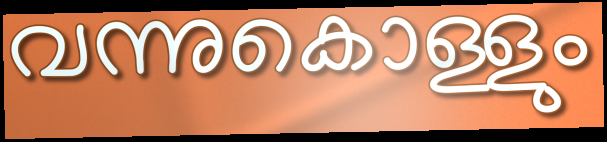
വന്നുകൊള്ളും